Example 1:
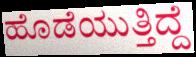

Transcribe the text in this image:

ಹೊಡೆಯುತ್ತಿದ್ದೆ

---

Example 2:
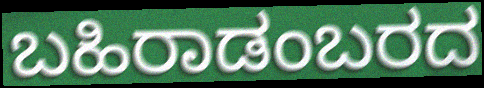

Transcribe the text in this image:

ಬಹಿರಾಡಂಬರದ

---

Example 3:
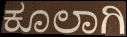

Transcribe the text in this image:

ಕೂಲಾಗಿ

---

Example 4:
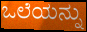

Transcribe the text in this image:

ಒಲೆಯನ್ನು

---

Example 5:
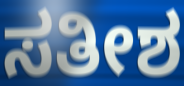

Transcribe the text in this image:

ಸತೀಶ